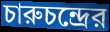
চারুচন্দ্রের